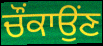
ਚੌਂਕਾਉਂਣ